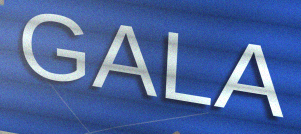
GALA